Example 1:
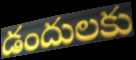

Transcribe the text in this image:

డందులకు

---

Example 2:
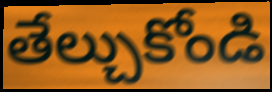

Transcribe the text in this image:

తేల్చుకోండి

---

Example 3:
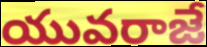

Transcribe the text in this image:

యువరాజే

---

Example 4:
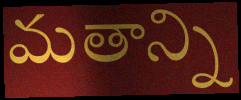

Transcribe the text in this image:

మతాన్ని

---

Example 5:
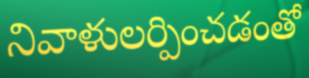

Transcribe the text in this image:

నివాళులర్పించడంతో